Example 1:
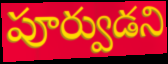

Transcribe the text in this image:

పూర్వుడని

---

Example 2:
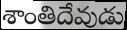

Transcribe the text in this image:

శాంతిదేవుడు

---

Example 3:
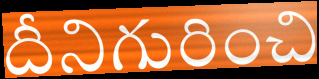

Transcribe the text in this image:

దీనిగురించి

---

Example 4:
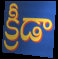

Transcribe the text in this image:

క్రీడా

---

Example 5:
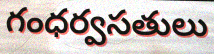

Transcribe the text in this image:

గంధర్వసతులు